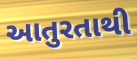
આતુરતાથી